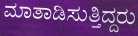
ಮಾತಾಡಿಸುತ್ತಿದ್ದರು